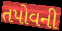
તપોવની